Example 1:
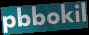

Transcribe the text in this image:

pbbokil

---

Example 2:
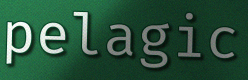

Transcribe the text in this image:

pelagic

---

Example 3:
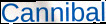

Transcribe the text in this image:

Cannibal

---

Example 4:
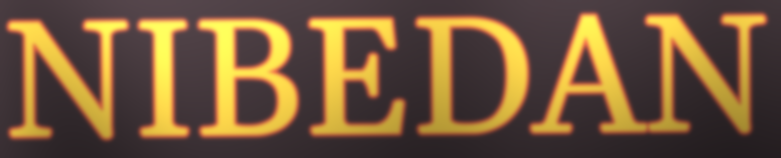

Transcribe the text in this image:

NIBEDAN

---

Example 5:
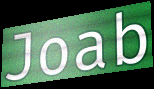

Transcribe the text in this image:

Joab